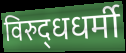
विरुद्धधर्मी